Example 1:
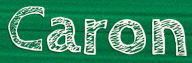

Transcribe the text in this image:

Caron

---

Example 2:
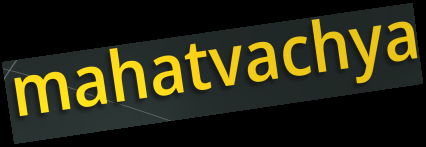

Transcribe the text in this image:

mahatvachya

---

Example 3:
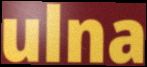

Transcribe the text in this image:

ulna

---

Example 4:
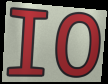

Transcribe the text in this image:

IO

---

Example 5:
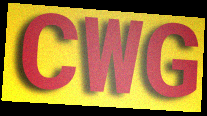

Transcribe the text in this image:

CWG